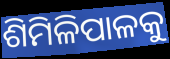
ଶିମିଳିପାଳକୁ